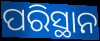
ପରିସ୍ଥାନ